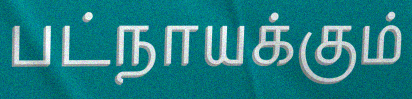
பட்நாயக்கும்